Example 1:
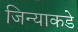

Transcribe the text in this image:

जिन्याकडे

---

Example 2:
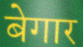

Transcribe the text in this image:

बेगार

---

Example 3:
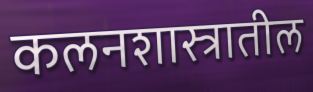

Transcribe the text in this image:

कलनशास्त्रातील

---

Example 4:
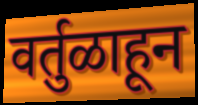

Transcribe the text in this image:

वर्तुळाहून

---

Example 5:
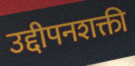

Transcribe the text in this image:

उद्दीपनशक्ती